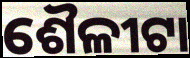
ଶୈଳୀଟା